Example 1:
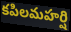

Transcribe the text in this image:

కపిలమహర్షి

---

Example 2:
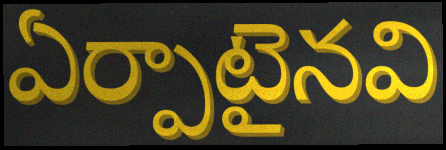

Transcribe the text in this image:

ఏర్పాటైనవి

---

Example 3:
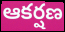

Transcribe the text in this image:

ఆకర్షణ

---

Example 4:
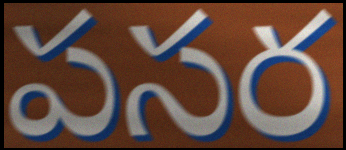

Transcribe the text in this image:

పసర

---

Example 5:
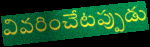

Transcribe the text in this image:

వివరించేటప్పుడు